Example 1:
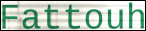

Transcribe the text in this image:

Fattouh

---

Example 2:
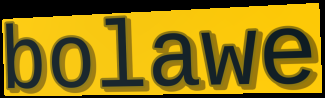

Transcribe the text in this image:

bolawe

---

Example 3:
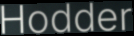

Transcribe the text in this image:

Hodder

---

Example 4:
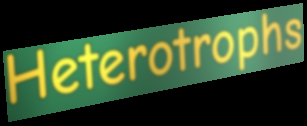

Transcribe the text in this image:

Heterotrophs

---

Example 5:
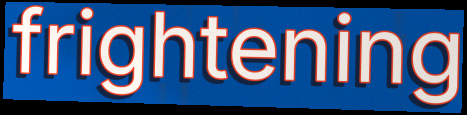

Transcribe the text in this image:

frightening